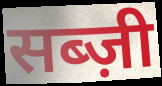
सब्ज़ी